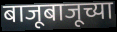
बाजूबाजूच्या